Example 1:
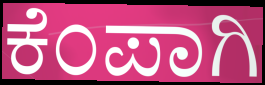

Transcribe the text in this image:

ಕೆಂಪಾಗಿ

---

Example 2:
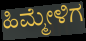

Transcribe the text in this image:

ಹಿಮ್ಮೇಳಿಗ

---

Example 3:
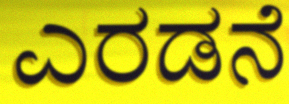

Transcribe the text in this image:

ಎರಡನೆ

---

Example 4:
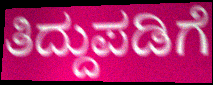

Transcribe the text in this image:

ತಿದ್ದುಪಡಿಗೆ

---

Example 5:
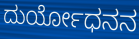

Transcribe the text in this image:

ದುರ್ಯೋಧನನ